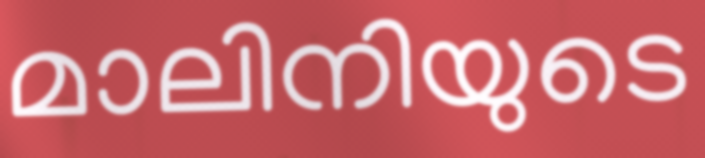
മാലിനിയുടെ